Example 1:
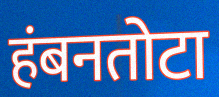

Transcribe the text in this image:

हंबनतोटा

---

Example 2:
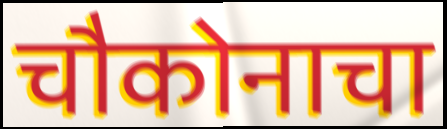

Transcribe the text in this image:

चौकोनाचा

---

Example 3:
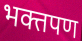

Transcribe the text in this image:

भक्तपण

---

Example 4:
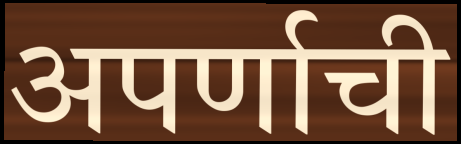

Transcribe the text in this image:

अपर्णाची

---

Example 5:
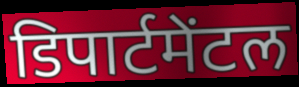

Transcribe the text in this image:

डिपार्टमेंटल